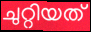
ചുറ്റിയത്